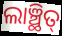
ଲାଞ୍ଛିତ୍